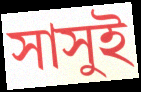
সাসুই